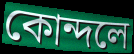
কোন্দলে